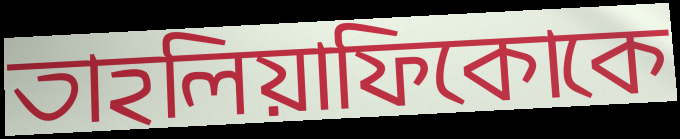
তাহলিয়াফিকোকে